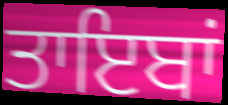
ਤਾਇਬਾਂ